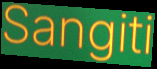
Sangiti